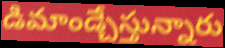
డిమాండ్చేస్తున్నారు